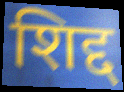
शिद्द